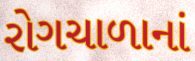
રોગચાળાનાં